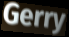
Gerry